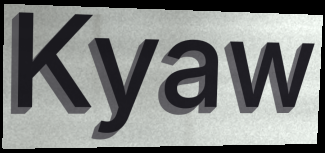
Kyaw